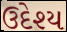
ઉદેશ્ય